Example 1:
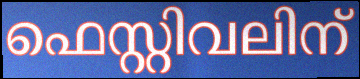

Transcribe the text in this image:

ഫെസ്റ്റിവലിന്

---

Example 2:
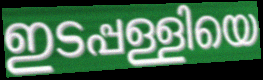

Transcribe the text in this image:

ഇടപ്പള്ളിയെ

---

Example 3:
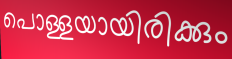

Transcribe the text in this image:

പൊള്ളയായിരിക്കും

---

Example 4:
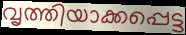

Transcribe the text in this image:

വൃത്തിയാക്കപ്പെട്ട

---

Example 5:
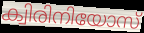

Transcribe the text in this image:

ക്വിരിനിയോസ്